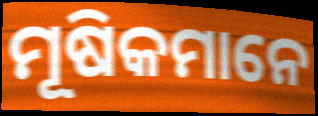
ମୂଷିକମାନେ